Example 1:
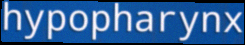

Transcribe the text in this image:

hypopharynx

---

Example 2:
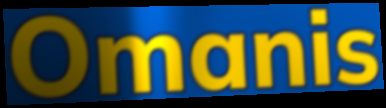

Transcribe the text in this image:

Omanis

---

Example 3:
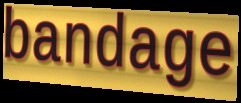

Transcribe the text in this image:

bandage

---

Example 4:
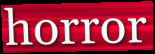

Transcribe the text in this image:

horror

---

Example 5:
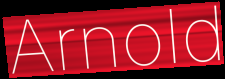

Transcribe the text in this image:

Arnold